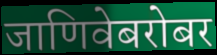
जाणिवेबरोबर